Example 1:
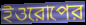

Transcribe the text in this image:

ইওরোপের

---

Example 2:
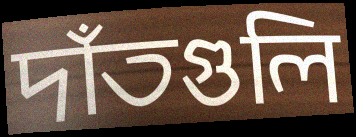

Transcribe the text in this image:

দাঁতগুলি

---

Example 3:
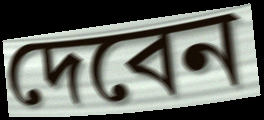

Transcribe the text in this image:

দেবেন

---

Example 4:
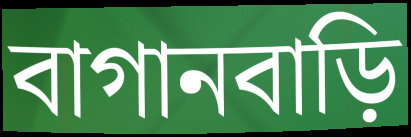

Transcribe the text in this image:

বাগানবাড়ি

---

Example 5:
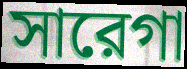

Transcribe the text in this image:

সারেগা